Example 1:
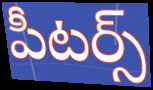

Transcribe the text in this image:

పీటర్స్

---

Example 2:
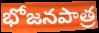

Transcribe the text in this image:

భోజనపాత్ర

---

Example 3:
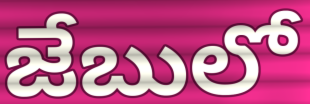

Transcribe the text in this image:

జేబులో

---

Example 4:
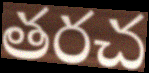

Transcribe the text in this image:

తరచ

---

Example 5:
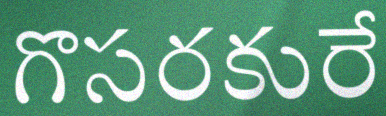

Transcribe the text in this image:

గొసరకురే